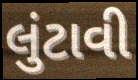
લુંટાવી